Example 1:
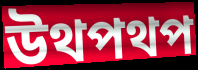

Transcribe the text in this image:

উথপথপ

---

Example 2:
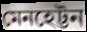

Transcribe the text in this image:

মেনহেট্টন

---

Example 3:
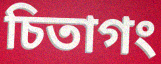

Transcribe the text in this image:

চিতাগং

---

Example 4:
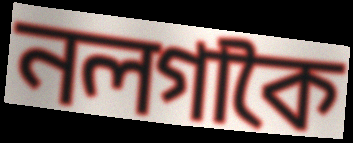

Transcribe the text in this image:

নলগাকৈ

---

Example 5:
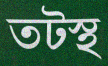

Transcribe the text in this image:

তটস্থ